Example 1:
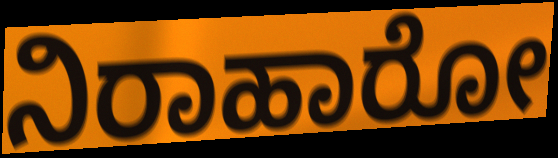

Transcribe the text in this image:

ನಿರಾಹಾರೋ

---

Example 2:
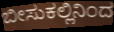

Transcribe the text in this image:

ಬೀಸುಕಲ್ಲಿನಿಂದ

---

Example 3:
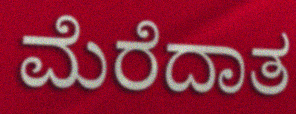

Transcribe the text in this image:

ಮೆರೆದಾತ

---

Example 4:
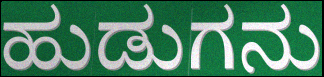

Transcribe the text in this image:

ಹುಡುಗನು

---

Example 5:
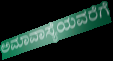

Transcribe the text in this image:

ಅಮಾವಾಸ್ಯೆಯವರೆಗೆ